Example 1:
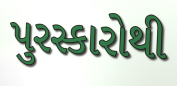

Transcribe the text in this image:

પુરસ્કારોથી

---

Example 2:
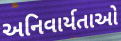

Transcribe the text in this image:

અનિવાર્યતાઓ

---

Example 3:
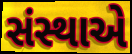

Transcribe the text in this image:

સંસ્થાએ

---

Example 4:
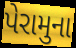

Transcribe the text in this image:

પેરામુના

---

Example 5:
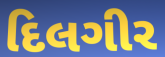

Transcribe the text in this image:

દિલગીર